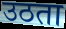
उठता